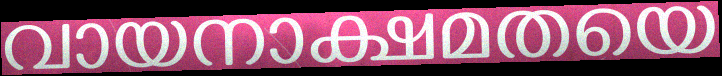
വായനാക്ഷമതയെ